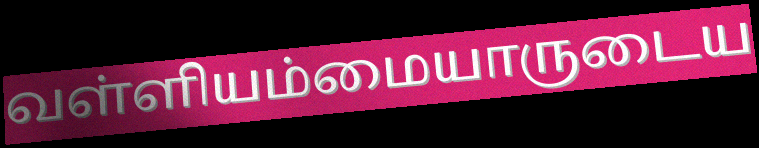
வள்ளியம்மையாருடைய